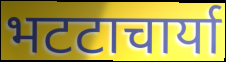
भटटाचार्या